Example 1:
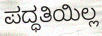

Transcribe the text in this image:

ಪದ್ಧತಿಯಿಲ್ಲ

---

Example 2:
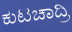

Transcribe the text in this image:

ಕುಟಚಾದ್ರಿ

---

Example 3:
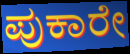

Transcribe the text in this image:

ಪುಕಾರೇ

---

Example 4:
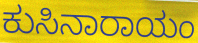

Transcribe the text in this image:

ಕುಸಿನಾರಾಯಂ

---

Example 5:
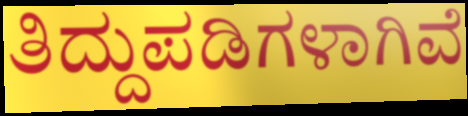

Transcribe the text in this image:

ತಿದ್ದುಪಡಿಗಳಾಗಿವೆ